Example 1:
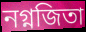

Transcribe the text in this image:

নগ্নজিতা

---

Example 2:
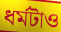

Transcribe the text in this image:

ধর্মটাও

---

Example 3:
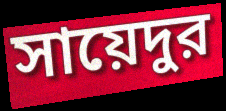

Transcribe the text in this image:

সায়েদুর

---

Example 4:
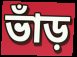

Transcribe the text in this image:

ভাঁড়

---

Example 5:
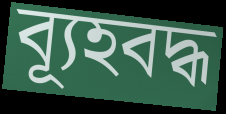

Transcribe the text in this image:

ব্যূহবদ্ধ